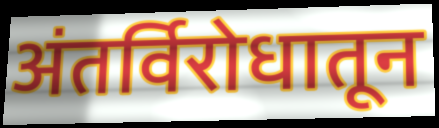
अंतर्विरोधातून